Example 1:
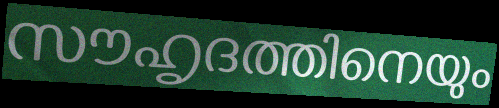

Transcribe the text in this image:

സൗഹൃദത്തിനെയും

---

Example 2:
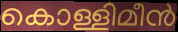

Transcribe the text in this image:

കൊള്ളിമീൻ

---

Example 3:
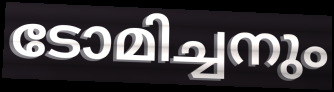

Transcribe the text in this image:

ടോമിച്ചനും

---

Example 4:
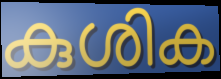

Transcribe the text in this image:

കുശിക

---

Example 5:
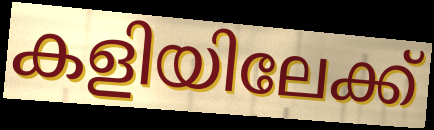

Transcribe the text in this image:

കളിയിലേക്ക്